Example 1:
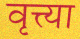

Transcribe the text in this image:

वृत्त्या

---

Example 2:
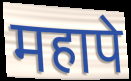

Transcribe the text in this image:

महापे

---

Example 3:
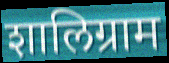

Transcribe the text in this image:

शालिग्राम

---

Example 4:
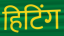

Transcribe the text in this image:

हिटिंग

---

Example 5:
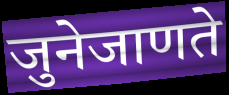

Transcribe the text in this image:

जुनेजाणते